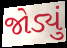
જોડ્યું